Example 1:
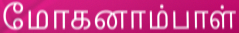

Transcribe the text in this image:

மோகனாம்பாள்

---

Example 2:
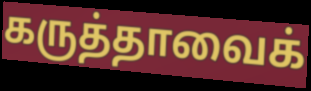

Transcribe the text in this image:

கருத்தாவைக்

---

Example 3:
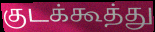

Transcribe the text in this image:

குடக்கூத்து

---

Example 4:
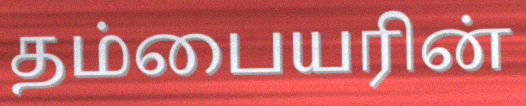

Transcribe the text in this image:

தம்பையரின்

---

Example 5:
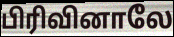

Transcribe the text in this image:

பிரிவினாலே